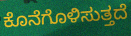
ಕೊನೆಗೊಳಿಸುತ್ತದೆ